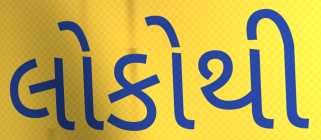
લોકોથી